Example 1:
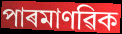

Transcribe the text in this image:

পাৰমাণৱিক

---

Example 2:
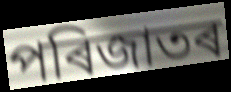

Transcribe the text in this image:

পৰিজাতৰ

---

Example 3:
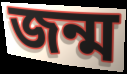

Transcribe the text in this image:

জন্ম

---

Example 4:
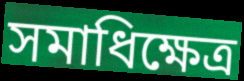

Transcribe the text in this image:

সমাধিক্ষেত্ৰ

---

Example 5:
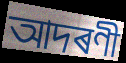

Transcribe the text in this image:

আদৰণী